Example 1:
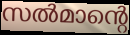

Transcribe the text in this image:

സൽമാന്റെ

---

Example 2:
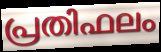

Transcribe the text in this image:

പ്രതിഫലം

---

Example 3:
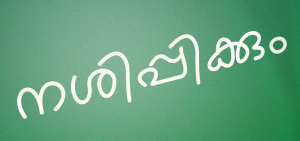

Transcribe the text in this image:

നശിപ്പിക്കും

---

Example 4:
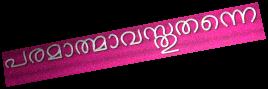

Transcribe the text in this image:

പരമാത്മാവസ്തുതന്നെ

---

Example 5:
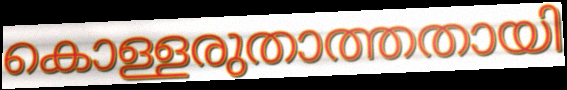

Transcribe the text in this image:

കൊള്ളരുതാത്തതായി